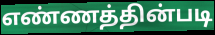
எண்ணத்தின்படி